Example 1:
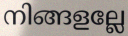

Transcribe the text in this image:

നിങ്ങളല്ലേ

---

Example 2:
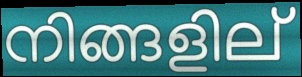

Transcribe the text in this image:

നിങ്ങളില്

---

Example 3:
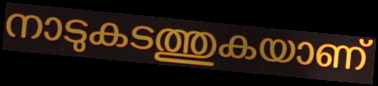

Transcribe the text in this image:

നാടുകടത്തുകയാണ്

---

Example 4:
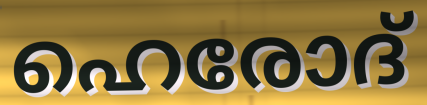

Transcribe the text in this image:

ഹെരോദ്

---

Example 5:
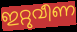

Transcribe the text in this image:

ഇറ്റുവീണ